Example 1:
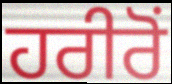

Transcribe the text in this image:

ਹਰੀਰੋਂ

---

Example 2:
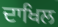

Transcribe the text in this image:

ਦਾਖਿਲ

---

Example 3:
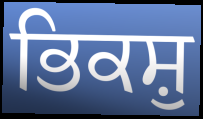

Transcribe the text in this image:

ਭਿਕਸ਼ੁ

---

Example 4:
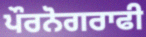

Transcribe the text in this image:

ਪੌਰਨੋਗਰਾਫੀ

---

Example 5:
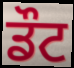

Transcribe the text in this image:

ਡੌਟ